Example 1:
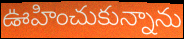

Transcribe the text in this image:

ఊహించుకున్నాను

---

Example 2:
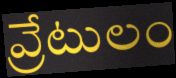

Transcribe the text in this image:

వ్రేటులం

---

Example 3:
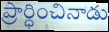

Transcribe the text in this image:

ప్రార్ధించినాడు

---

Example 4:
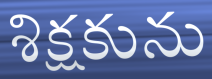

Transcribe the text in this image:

శిక్షకును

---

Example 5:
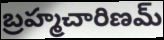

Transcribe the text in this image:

బ్రహ్మచారిణమ్